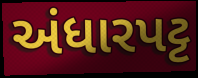
અંધારપટ્ટ